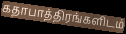
கதாபாத்திரங்களிடம்